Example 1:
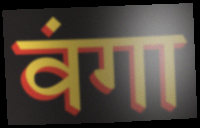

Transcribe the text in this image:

वंगा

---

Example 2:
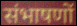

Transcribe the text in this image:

संभाषणों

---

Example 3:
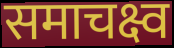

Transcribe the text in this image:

समाचक्ष्व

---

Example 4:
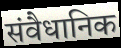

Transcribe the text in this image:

संवैधानिक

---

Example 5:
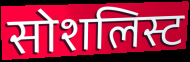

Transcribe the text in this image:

सोशलिस्ट